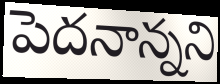
పెదనాన్నని